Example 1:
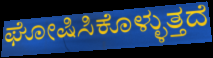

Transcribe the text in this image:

ಘೋಷಿಸಿಕೊಳ್ಳುತ್ತದೆ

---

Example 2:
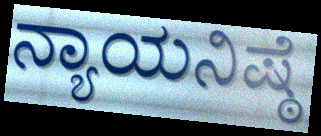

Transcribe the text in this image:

ನ್ಯಾಯನಿಷ್ಠೆ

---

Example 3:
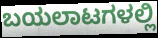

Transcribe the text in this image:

ಬಯಲಾಟಗಳಲ್ಲಿ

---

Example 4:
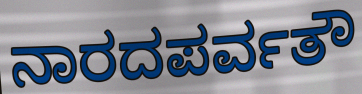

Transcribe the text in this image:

ನಾರದಪರ್ವತೌ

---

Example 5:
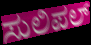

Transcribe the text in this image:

ಸುಲಿಪಲ್